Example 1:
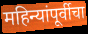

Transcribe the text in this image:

महिन्यांपूर्वीचा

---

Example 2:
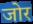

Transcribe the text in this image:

जोर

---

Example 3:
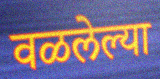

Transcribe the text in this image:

वळलेल्या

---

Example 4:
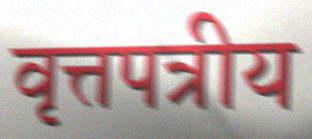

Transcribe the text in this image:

वृत्तपत्रीय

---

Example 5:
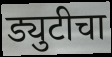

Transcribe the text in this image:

ड्युटीचा